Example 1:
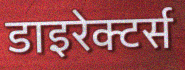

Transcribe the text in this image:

डाइरेक्टर्स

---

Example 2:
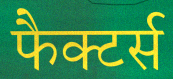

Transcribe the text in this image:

फैक्टर्स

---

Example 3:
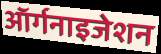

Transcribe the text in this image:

ऑर्गनाइजेशन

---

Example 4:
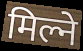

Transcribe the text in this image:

मिल्ने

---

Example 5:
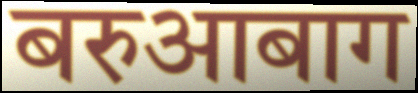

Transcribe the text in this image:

बरुआबाग